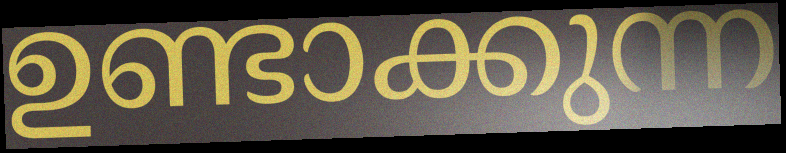
ഉണ്ടാക്കുന്ന